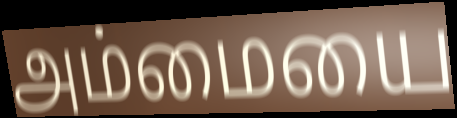
அம்மையை